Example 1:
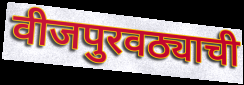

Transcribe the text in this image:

वीजपुरवठ्याची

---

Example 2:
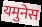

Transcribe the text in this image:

यमुनेस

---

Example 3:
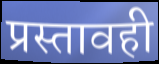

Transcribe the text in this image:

प्रस्तावही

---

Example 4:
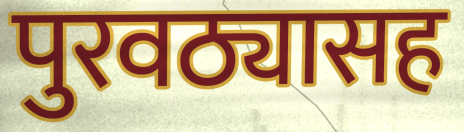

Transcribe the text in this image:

पुरवठ्यासह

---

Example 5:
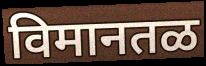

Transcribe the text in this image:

विमानतळ